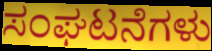
ಸಂಘಟನೆಗಳು